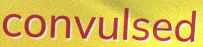
convulsed